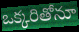
ఒక్కరితోనూ